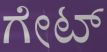
ಗೇಟ್